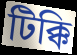
টিক্কি